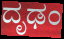
ದೃಢಂ